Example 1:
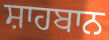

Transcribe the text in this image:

ਸ਼ਾਹਬਾਨ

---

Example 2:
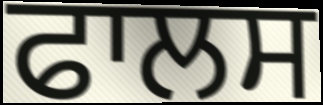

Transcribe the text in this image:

ਫਾਲਸ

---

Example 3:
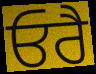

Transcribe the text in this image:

ਓਰੈ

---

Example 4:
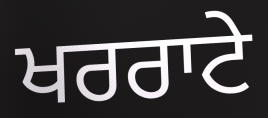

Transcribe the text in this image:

ਖਰਰਾਟੇ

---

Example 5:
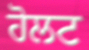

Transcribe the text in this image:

ਹੋਲਟ